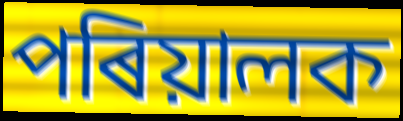
পৰিয়ালক